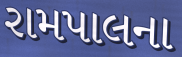
રામપાલના